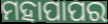
ମହାପାପର